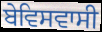
ਬੇਵਿਸਵਾਸੀ